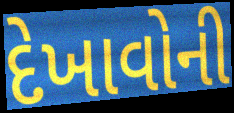
દેખાવોની